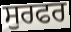
ਸੁਰਫਰ